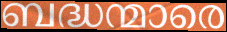
ബദ്ധന്മാരെ